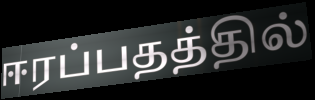
ஈரப்பதத்தில்